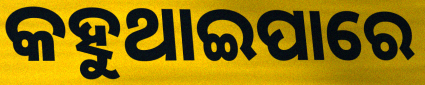
କହୁଥାଇପାରେ